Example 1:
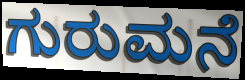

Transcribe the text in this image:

ಗುರುಮನೆ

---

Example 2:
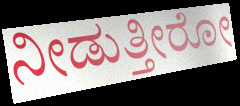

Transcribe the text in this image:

ನೀಡುತ್ತೀರೋ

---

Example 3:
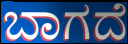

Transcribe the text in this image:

ಬಾಗದೆ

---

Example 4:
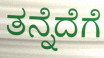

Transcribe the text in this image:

ತನ್ನೆದೆಗೆ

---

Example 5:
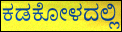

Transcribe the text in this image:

ಕಡಕೋಳದಲ್ಲಿ